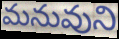
మనువుని